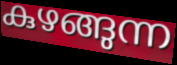
കുഴങ്ങുന്ന